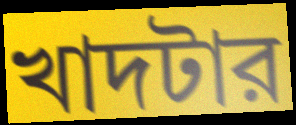
খাদটার